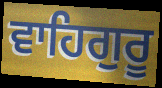
ਵਾਹਿਗੁਰੂ